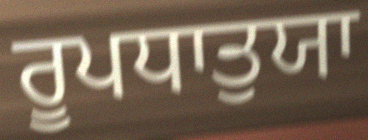
ਰੂਪਧਾਤੁਯਾ